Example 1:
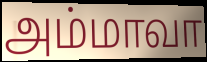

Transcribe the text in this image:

அம்மாவா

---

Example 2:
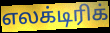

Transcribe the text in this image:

எலக்டிரிக்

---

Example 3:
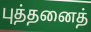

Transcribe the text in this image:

புத்தனைத்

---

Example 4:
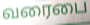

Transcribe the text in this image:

வரைபை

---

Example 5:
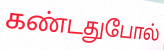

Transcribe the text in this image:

கண்டதுபோல்